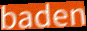
baden